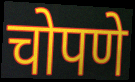
चोपणे